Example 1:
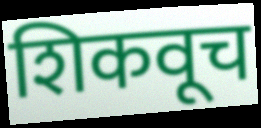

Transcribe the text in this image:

शिकवूच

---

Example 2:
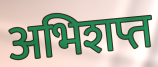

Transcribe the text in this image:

अभिशप्त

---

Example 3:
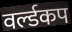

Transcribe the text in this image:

वर्ल्डकप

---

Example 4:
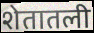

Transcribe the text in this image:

शेतातली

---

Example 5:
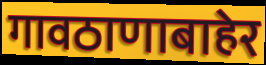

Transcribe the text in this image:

गावठाणाबाहेर